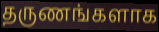
தருணங்களாக